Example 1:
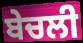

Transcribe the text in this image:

ਬੇਚਲੀ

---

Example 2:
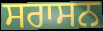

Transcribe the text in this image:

ਸਰਾਸਨ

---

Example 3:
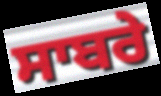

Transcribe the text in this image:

ਸਾਬਰੇ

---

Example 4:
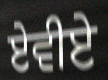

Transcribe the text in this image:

ਏਵੀਏ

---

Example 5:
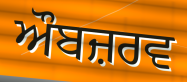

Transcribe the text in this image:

ਔਬਜ਼ਰਵ